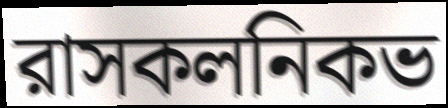
রাসকলনিকভ